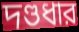
দণ্ডধার